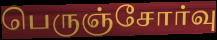
பெருஞ்சோர்வு